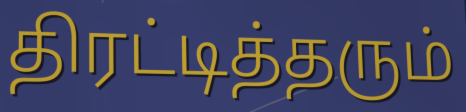
திரட்டித்தரும்